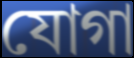
যোগা